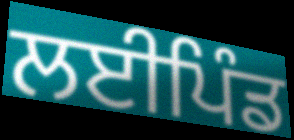
ਲਈਪਿੰਡ